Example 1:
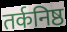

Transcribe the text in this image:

तर्कनिष्ठ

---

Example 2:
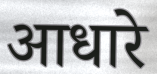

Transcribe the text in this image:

आधारे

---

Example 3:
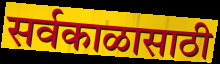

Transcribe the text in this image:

सर्वकाळासाठी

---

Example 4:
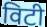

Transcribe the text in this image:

विटी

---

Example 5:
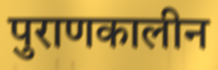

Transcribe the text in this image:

पुराणकालीन